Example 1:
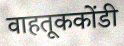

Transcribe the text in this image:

वाहतूककोंडी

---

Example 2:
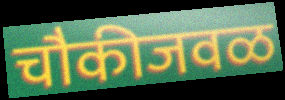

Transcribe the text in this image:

चौकीजवळ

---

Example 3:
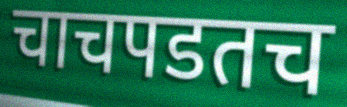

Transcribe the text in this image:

चाचपडतच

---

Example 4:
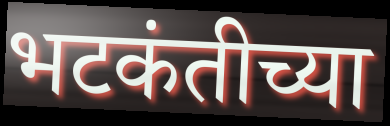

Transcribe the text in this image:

भटकंतीच्या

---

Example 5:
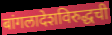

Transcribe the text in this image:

बांगलादेशविरुद्धची